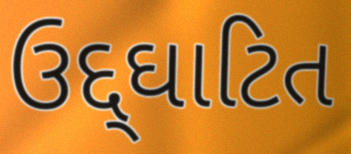
ઉદ્દ્ઘાટિત